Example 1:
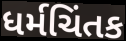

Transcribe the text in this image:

ધર્મચિંતક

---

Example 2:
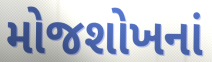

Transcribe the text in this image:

મોજશોખનાં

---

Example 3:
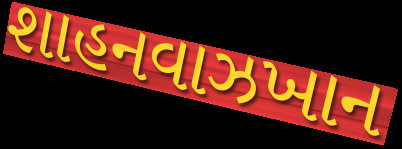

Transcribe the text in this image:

શાહનવાઝખાન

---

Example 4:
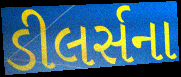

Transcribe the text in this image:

ડીલર્સના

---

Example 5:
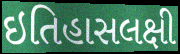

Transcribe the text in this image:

ઇતિહાસલક્ષી